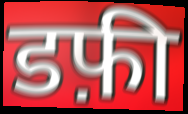
डफ़ी